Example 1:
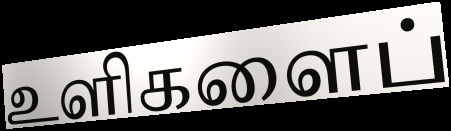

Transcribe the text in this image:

உளிகளைப்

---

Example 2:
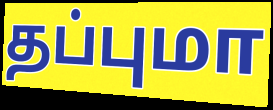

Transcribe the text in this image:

தப்புமா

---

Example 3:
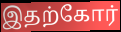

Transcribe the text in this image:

இதற்கோர்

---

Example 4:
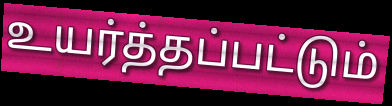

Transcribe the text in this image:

உயர்த்தப்பட்டும்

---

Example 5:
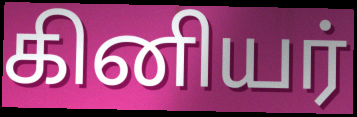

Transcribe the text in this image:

கினியர்